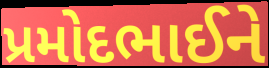
પ્રમોદભાઈને